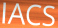
IACS